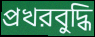
প্রখরবুদ্ধি